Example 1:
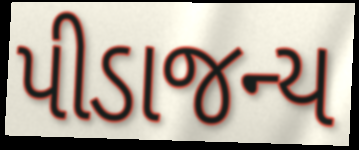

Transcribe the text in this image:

પીડાજન્ય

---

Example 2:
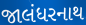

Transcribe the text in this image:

જાલંધરનાથ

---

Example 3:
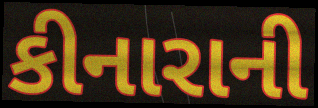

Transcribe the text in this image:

કીનારાની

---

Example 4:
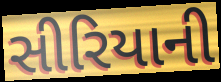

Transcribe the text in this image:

સીરિયાની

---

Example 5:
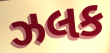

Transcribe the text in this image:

ઝલક